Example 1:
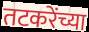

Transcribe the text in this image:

तटकरेंच्या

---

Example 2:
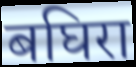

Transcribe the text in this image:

बघिरा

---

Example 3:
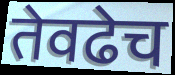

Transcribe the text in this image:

तेवढेच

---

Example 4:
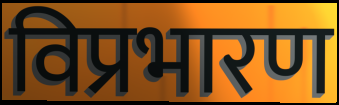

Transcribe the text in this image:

विप्रभारण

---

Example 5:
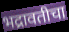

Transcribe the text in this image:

भद्रावतीचा